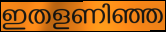
ഇതളണിഞ്ഞ